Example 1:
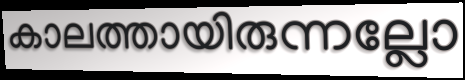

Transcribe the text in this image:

കാലത്തായിരുന്നല്ലോ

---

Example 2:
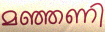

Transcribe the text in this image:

മഞ്ഞണി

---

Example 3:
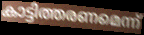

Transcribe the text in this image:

കാട്ടിത്തരണമെന്ന്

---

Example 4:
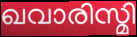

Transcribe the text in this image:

ഖവാരിസ്മി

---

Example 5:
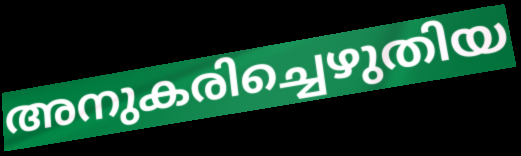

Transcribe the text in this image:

അനുകരിച്ചെഴുതിയ